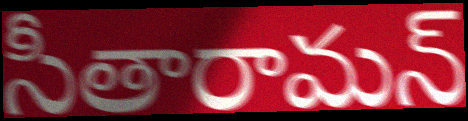
సీతారామన్